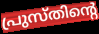
പ്രുസ്തിന്റെ